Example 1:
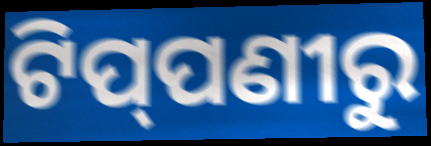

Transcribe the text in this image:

ଟିପ୍‌ପଣୀରୁ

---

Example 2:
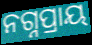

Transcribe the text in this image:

ନଗ୍ନପ୍ରାୟ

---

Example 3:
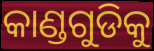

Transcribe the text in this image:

କାଣ୍ଡଗୁଡିକୁ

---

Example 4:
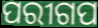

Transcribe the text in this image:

ପରୀଗପ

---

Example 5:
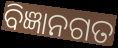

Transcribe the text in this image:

ବିଜ୍ଞାନଗତ